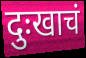
दुःखाचं